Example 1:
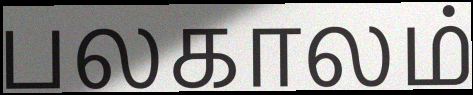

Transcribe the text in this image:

பலகாலம்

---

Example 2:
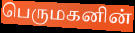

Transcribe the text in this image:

பெருமகனின்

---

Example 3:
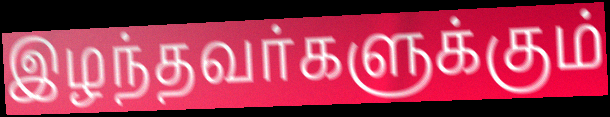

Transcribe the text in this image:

இழந்தவர்களுக்கும்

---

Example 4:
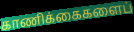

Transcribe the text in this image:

காணிக்கைகளைப்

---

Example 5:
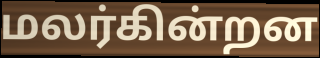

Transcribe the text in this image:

மலர்கின்றன